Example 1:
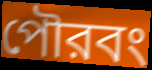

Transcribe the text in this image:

পৌরবং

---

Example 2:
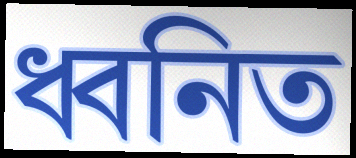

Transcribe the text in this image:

ধ্বনিত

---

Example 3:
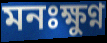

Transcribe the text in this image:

মনঃক্ষুণ্ন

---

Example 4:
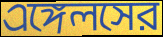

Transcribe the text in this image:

এঙ্গেলসের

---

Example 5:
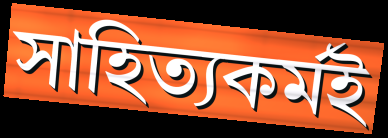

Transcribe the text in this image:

সাহিত্যকর্মই